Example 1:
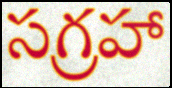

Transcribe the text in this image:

సగ్రహా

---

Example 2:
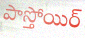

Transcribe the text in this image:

పాస్తోయిర్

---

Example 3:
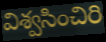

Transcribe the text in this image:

విశ్వసించిరి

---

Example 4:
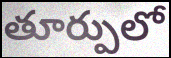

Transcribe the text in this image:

తూర్పులో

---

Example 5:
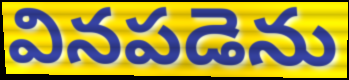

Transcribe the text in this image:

వినపడెను